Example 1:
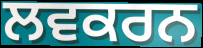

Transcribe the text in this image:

ਲਵਕਰਨ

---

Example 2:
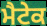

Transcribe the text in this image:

ਮੈਟੇਕ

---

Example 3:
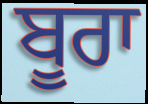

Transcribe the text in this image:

ਬੂਰਾ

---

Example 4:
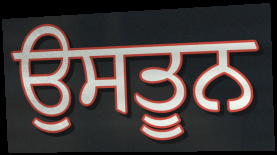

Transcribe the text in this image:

ਉਸਤੂਨ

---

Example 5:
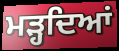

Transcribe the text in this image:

ਮੜ੍ਹਦਿਆਂ